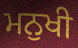
ਮਨੁਖੀ